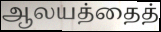
ஆலயத்தைத்